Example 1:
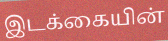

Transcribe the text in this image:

இடக்கையின்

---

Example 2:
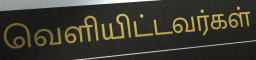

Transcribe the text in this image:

வெளியிட்டவர்கள்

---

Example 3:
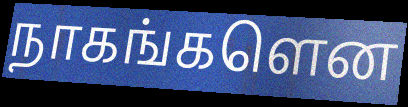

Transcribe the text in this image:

நாகங்களென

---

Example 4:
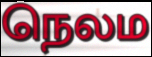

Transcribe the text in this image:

நெலம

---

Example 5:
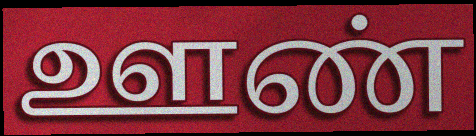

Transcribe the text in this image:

ஊண்